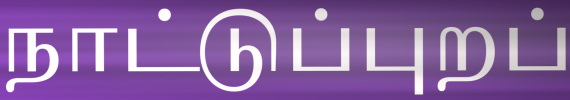
நாட்டுப்புறப்